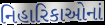
નિહારિકાઓનાં